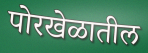
पोरखेळातील